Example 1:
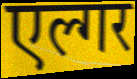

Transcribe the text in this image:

एल्गर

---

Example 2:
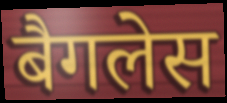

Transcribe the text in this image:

बैगलेस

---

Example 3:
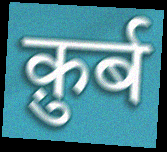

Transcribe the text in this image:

क़ुर्ब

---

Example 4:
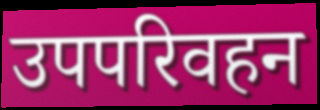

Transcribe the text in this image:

उपपरिवहन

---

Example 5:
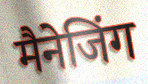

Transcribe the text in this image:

मैनेजिंग